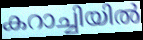
കറാച്ചിയിൽ